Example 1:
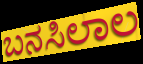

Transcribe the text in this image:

ಬನಸಿಲಾಲ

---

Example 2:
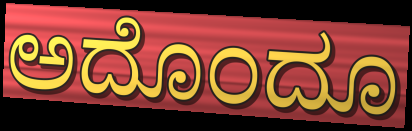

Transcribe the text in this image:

ಅದೊಂದೂ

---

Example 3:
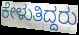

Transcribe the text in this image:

ಕೇಳುತಿದ್ದರು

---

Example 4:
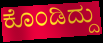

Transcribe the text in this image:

ಕೊಂಡಿದ್ದು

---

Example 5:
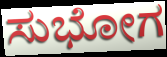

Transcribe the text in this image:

ಸುಭೋಗ